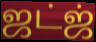
ஜட்ஜ்